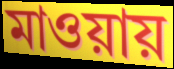
মাওয়ায়